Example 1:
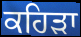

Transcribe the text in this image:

ਕਹਿੜਾ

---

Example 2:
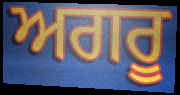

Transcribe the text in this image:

ਅਗਰੂ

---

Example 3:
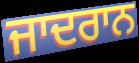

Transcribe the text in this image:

ਜਾਦਰਾਨ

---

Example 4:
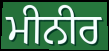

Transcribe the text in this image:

ਮੀਨੀਰ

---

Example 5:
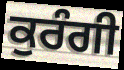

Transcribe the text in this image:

ਕੁਰੰਗੀ